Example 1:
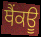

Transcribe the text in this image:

ਥੈਂਕਊ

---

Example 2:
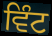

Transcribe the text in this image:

ਵਿੰਟ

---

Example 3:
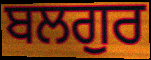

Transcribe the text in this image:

ਬਲਗੁਰ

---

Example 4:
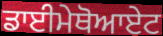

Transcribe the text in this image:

ਡਾਈਮੇਥੋਆਏਟ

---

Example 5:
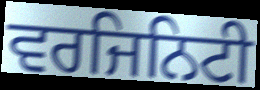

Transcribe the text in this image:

ਵਰਜਿਨਿਟੀ